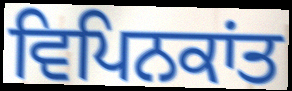
ਵਿਪਿਨਕਾਂਤ